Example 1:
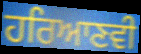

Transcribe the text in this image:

ਹਰਿਆਣਵੀ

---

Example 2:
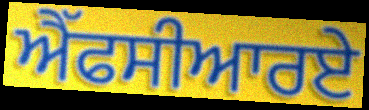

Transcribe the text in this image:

ਐੱਫਸੀਆਰਏ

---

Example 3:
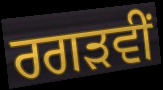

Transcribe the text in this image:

ਰਗੜਵੀਂ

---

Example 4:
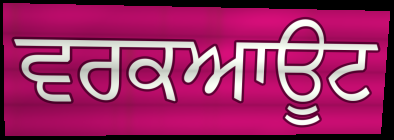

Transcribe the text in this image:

ਵਰਕਆਊਟ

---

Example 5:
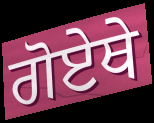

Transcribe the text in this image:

ਗੋਏਥੇ